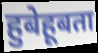
हुबेहूबता